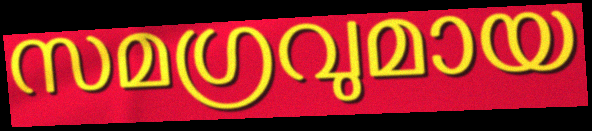
സമഗ്രവുമായ